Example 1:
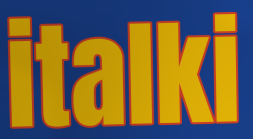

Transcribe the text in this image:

italki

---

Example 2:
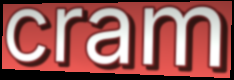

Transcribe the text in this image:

cram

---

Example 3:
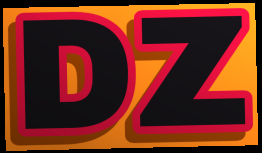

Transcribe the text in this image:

DZ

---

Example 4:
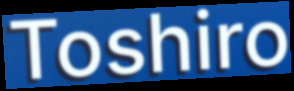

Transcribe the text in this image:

Toshiro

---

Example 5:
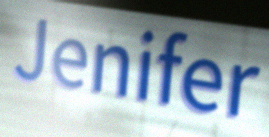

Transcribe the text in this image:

Jenifer